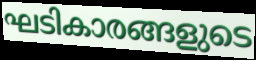
ഘടികാരങ്ങളുടെ